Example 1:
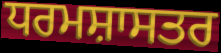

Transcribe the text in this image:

ਧਰਮਸ਼ਾਸਤਰ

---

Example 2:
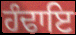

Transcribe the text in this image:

ਹੰਢਾਇ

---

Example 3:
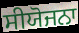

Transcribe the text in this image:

ਸੀਯੋਜਨਾ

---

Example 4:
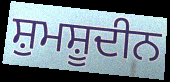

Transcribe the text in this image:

ਸ਼ੁਮਸ਼ੂਦੀਨ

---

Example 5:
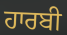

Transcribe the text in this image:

ਹਾਰਬੀ